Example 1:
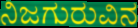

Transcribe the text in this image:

ನಿಜಗುರುವಿನ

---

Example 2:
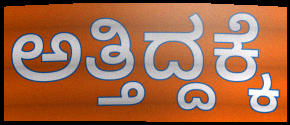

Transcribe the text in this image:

ಅತ್ತಿದ್ದಕ್ಕೆ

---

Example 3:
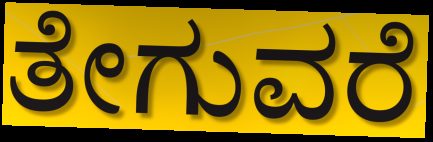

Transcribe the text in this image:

ತೇಗುವರೆ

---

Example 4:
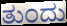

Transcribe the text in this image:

ತುಂದು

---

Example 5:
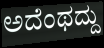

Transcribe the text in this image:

ಅದೆಂಥದ್ದು